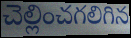
చెల్లించగలిగిన